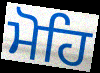
ਮੋਹਿ